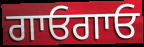
ਗਾਓਗਾਓ